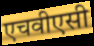
एचवीएसी